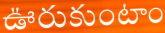
ఊరుకుంటాం